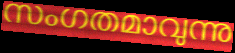
സംഗതമാവുന്നു